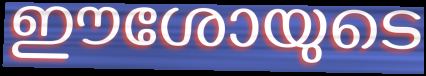
ഈശോയുടെ